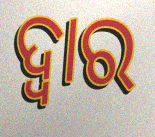
ଦ୍ବାର